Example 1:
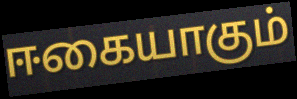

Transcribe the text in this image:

ஈகையாகும்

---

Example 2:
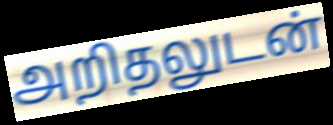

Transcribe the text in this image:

அறிதலுடன்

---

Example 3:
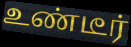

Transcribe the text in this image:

உண்டீர்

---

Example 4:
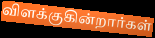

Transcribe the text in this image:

விளக்குகின்றார்கள்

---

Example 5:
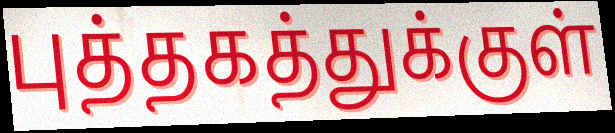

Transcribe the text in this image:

புத்தகத்துக்குள்